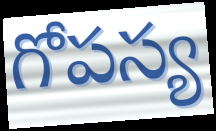
గోపస్య